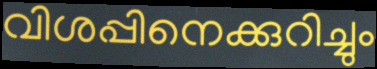
വിശപ്പിനെക്കുറിച്ചും